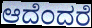
ಆದೆಂದರೆ